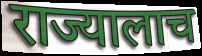
राज्यालाच